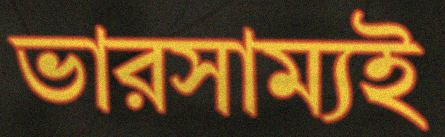
ভারসাম্যই